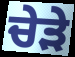
ਚੇੜੇ